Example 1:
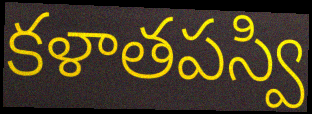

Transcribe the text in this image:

కళాతపస్వి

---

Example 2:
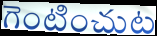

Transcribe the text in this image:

గెంటించుట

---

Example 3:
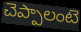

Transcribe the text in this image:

చెప్పాలంటె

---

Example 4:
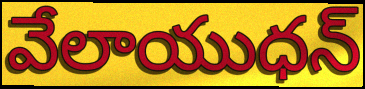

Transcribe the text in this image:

వేలాయుధన్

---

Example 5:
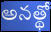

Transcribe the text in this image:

అనత్థో